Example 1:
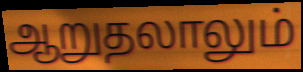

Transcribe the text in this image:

ஆறுதலாலும்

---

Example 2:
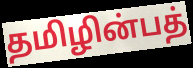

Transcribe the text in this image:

தமிழின்பத்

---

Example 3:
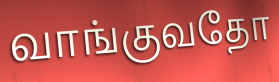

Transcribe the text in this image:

வாங்குவதோ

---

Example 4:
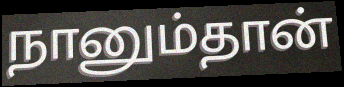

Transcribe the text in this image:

நானும்தான்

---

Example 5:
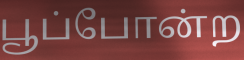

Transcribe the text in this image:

பூப்போன்ற